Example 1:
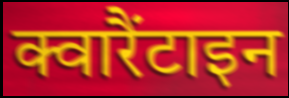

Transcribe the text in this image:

क्वारैंटाइन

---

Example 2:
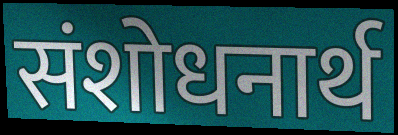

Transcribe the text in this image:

संशोधनार्थ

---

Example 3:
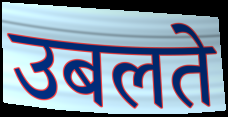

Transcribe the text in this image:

उबलते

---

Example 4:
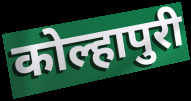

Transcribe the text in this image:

कोल्हापुरी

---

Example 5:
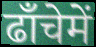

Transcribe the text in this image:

ढाँचेमें